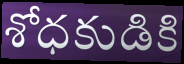
శోధకుడికి